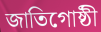
জাতিগোষ্ঠী